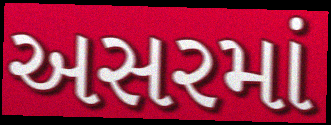
અસરમાં